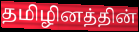
தமிழினத்தின்